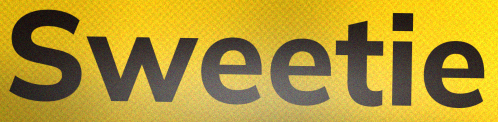
Sweetie